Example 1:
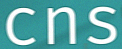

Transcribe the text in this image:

cns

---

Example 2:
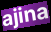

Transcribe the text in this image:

ajina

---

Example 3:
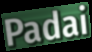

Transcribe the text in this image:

Padai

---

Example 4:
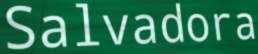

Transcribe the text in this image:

Salvadora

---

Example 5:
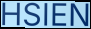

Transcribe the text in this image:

HSIEN